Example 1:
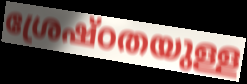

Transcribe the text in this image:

ശ്രേഷ്ഠതയുള്ള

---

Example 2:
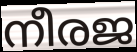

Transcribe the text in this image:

നീരജ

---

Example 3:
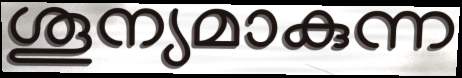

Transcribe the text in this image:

ശൂന്യമാകുന്ന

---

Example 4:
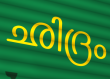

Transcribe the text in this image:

ഛിദ്രം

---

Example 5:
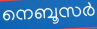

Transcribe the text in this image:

നെബൂസർ